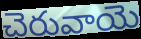
చెరువాయె